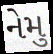
નેમુ